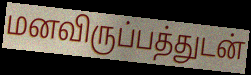
மனவிருப்பத்துடன்